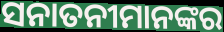
ସନାତନୀମାନଙ୍କର